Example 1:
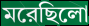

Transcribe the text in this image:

মরেছিলো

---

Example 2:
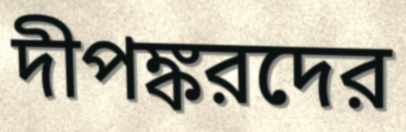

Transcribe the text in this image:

দীপঙ্করদের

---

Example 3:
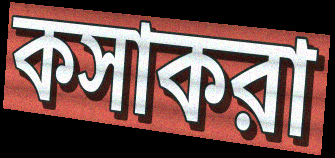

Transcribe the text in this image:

কসাকরা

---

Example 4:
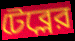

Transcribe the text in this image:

টেব্লের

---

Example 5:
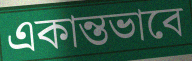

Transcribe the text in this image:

একান্তভাবে